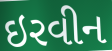
ઇરવીન